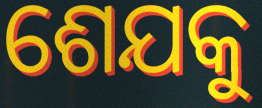
ଶେଯକୁ